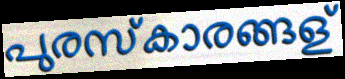
പുരസ്കാരങ്ങള്